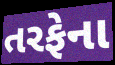
તરફેના